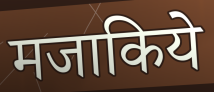
मजाकिये